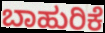
ಬಾಹುರಿಕೆ